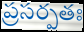
ప్రసర్పతః